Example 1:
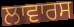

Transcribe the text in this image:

ਲਾਵਾਰਸ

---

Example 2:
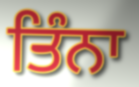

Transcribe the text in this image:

ਤਿੰਨਾ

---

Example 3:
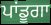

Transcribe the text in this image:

ਪਾਂਡੂਗਾ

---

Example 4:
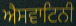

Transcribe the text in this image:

ਐਸਵਾਟਿਨੀ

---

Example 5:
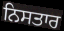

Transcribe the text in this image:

ਨਿਸਤਾਰ